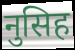
नुसिह